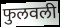
फुलवली